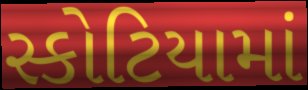
સ્કોટિયામાં